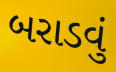
બરાડવું